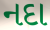
નદા